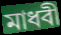
মাধবী